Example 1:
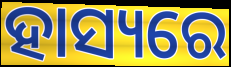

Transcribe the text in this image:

ହାସ୍ୟରେ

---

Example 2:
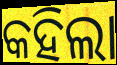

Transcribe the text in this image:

କହିଲା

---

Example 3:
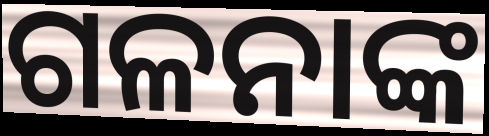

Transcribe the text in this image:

ଗଳନାଙ୍କ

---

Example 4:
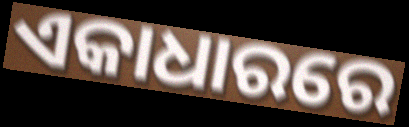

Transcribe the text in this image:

ଏକାଧାରରେ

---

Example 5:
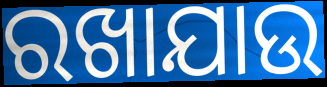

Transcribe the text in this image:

ରଖାଯାଉ